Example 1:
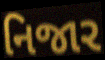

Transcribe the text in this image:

નિજાર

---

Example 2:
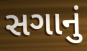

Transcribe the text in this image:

સગાનું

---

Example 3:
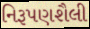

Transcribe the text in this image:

નિરૂપણશૈલી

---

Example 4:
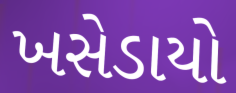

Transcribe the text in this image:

ખસેડાયો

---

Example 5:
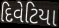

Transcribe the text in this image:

દિવેટિયા